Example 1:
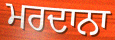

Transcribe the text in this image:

ਮਰਦਾਨਾ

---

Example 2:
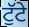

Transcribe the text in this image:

ਟੁੱਟੇ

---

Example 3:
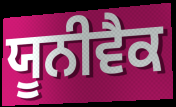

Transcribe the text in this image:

ਯੂਨੀਵੈਕ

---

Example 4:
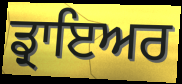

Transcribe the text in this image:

ਡ੍ਰਾਇਅਰ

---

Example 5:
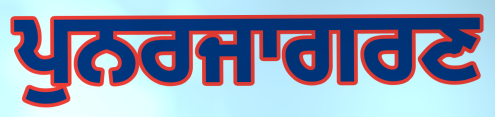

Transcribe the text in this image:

ਪੁਨਰਜਾਗਰਣ